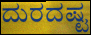
ದುರದಷ್ಟ